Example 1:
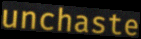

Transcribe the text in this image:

unchaste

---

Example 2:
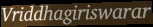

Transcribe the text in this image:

Vriddhagiriswarar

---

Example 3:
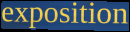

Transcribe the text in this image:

exposition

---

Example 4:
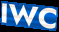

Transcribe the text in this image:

IWC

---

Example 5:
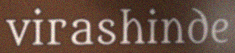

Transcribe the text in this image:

virashinde